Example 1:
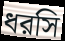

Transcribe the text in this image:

ধরসি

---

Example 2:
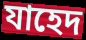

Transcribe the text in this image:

যাহেদ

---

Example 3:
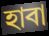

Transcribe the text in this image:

হাবা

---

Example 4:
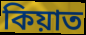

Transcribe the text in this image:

কিয়াত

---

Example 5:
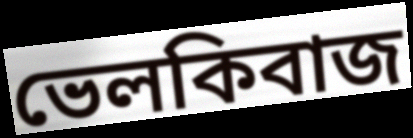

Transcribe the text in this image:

ভেলকিবাজ